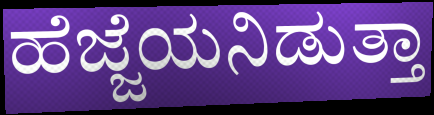
ಹೆಜ್ಜೆಯನಿಡುತ್ತಾ